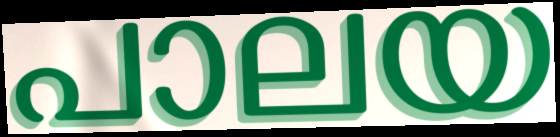
പാലയ